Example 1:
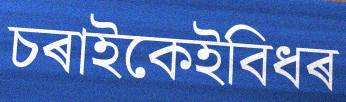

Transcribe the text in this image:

চৰাইকেইবিধৰ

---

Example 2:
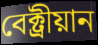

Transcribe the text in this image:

বেক্ট্ৰীয়ান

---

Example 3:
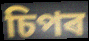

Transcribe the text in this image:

চিপৰ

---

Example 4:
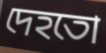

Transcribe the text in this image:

দেহতো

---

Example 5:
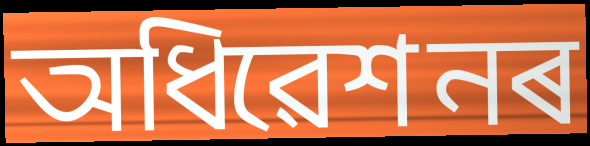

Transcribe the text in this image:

অধিৱেশনৰ